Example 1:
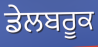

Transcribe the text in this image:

ਡੇਲਬਰੂਕ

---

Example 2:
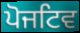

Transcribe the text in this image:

ਪੋਜਟਿਵ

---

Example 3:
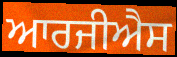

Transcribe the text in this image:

ਆਰਜੀਐਸ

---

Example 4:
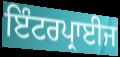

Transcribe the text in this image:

ਇੰਟਰਪ੍ਰਾਈਜ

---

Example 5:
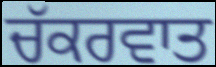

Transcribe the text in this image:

ਚੱਕਰਵਾਤ